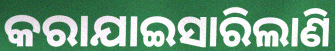
କରାଯାଇସାରିଲାଣି